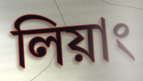
লিয়াং